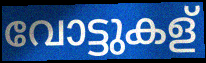
വോട്ടുകള്